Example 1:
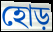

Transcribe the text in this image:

হোড়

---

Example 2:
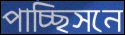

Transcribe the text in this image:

পাচ্ছিসনে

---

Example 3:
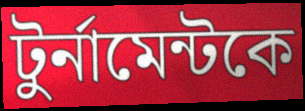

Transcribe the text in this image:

টুর্নামেন্টকে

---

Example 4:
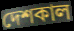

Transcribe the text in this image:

দেশকাল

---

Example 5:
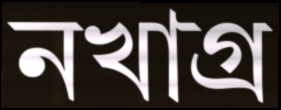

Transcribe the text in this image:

নখাগ্র